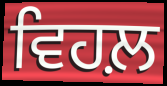
ਵਿਹਲ਼